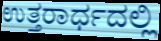
ಉತ್ತರಾರ್ಧದಲ್ಲಿ